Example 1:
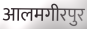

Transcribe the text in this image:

आलमगीरपुर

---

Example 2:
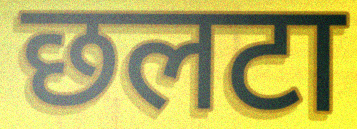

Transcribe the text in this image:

छलटा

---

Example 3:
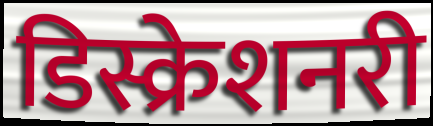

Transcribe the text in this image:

डिस्क्रेशनरी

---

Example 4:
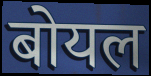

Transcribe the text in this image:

बोयल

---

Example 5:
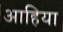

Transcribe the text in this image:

आहिया